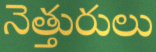
నెత్తురులు